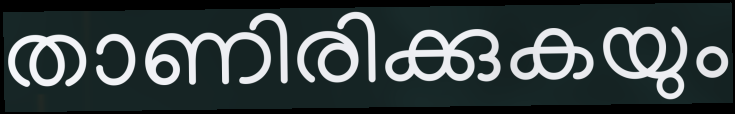
താണിരിക്കുകയും